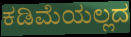
ಕಡಿಮೆಯಲ್ಲದ